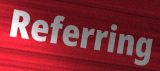
Referring